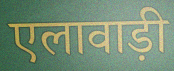
एलावाड़ी